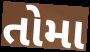
તોમા